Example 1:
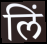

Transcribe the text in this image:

लिं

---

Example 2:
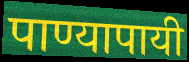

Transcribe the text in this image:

पाण्यापायी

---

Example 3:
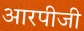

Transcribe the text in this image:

आरपीजी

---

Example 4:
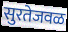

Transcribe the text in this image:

सुरतेजवळ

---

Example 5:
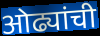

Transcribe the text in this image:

ओढ्यांची